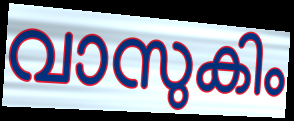
വാസുകിം